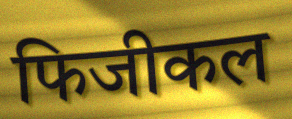
फिजीकल